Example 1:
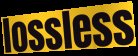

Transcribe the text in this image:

lossless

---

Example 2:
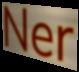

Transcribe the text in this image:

Ner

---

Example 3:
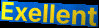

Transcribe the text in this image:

Exellent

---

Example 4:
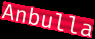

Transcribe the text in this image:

Anbulla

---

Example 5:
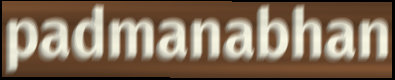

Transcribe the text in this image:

padmanabhan